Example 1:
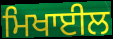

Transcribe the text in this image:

ਮਿਖਾਈਲ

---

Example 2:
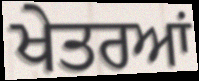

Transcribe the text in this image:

ਖੇਤਰਆਂ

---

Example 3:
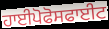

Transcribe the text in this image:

ਹਾਈਪੋਫੋਸਫਾਈਟ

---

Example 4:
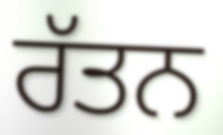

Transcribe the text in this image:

ਰੱਤਨ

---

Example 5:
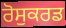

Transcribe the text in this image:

ਰੋਸੁਕਰਡ